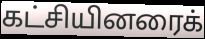
கட்சியினரைக்